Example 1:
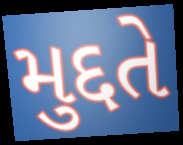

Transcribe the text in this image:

મુદ્દતે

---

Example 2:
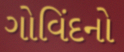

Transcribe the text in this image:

ગોવિંદનો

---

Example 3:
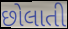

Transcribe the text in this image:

છોલાતી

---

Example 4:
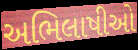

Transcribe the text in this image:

અભિલાષીઓ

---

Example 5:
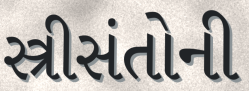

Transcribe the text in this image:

સ્ત્રીસંતોની